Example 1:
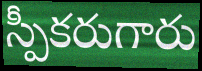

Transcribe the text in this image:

స్పీకరుగారు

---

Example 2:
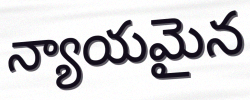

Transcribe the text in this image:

న్యాయమైన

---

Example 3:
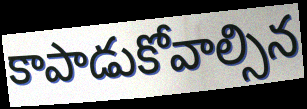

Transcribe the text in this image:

కాపాడుకోవాల్సిన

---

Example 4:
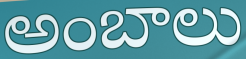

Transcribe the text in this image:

అంబాలు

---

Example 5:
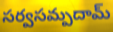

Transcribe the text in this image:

సర్వసమ్పదామ్